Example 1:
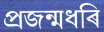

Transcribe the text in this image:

প্ৰজন্মধৰি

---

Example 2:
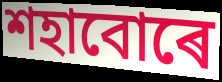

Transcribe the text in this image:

শহাবোৰে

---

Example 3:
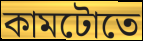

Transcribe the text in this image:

কামটোতে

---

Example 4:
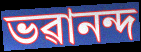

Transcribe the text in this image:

ভৱানন্দ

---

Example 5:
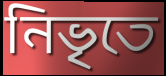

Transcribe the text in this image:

নিভৃতে